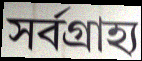
সর্বগ্রাহ্য